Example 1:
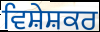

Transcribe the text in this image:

ਵਿਸ਼ੇਸ਼ਕਰ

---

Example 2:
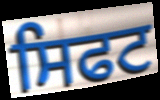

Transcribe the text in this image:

ਸਿਫਟ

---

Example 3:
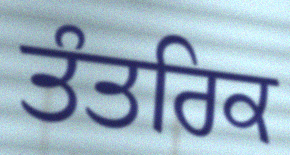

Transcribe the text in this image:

ਤੰਤਰਿਕ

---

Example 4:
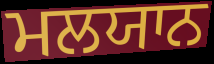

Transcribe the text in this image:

ਮਲਯਾਨ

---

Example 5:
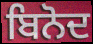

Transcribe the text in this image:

ਬਿਨੋਦ